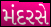
મંદરસે